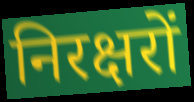
निरक्षरों